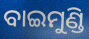
ବାଇମୁଣ୍ଡି